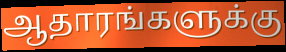
ஆதாரங்களுக்கு